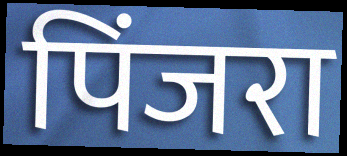
पिंजरा